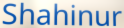
Shahinur